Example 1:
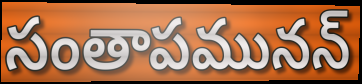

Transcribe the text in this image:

సంతాపమునన్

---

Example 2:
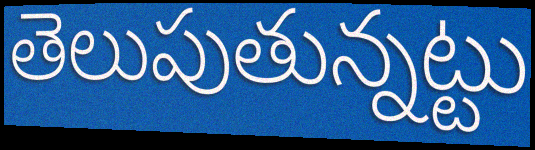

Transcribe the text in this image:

తెలుపుతున్నట్టు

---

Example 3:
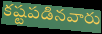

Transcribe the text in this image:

కష్టపడినవారు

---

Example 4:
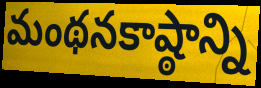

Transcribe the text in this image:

మంథనకాష్ఠాన్ని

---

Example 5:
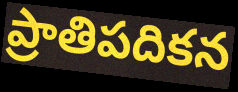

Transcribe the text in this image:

ప్రాతిపదికన